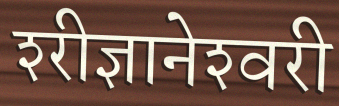
श्रीज्ञानेश्वरी